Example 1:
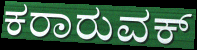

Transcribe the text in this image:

ಕರಾರುವಕ್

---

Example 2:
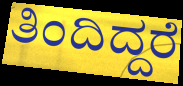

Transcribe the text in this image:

ತಿಂದಿದ್ದರೆ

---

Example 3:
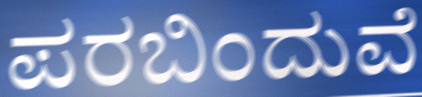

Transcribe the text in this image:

ಪರಬಿಂದುವೆ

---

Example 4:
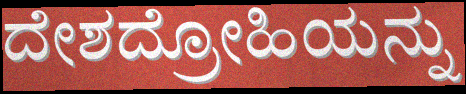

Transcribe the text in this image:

ದೇಶದ್ರೋಹಿಯನ್ನು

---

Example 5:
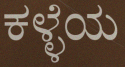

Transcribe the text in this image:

ಕಳ್ಳೆಯ